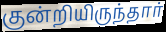
குன்றியிருந்தார்